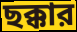
ছক্কার